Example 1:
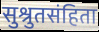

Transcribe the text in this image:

सुश्रुतसंहिता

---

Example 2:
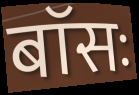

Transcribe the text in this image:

बॉसः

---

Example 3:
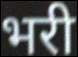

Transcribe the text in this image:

भरी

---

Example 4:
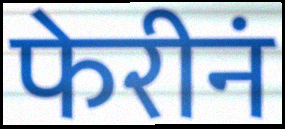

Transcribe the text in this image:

फेरीनं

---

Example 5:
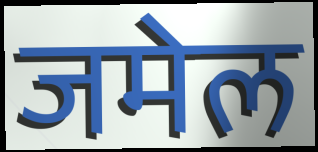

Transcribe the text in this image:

जमेल